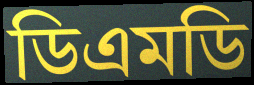
ডিএমডি